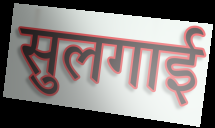
सुलगाई